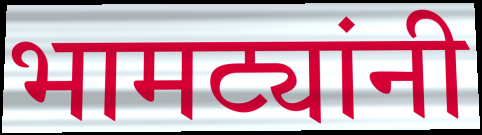
भामट्यांनी